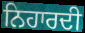
ਨਿਹਾਰਦੀ